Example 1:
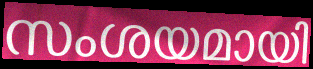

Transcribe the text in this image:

സംശയമായി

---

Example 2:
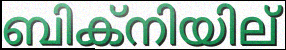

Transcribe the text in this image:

ബിക്നിയില്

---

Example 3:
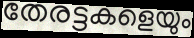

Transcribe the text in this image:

തേരട്ടകളെയും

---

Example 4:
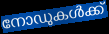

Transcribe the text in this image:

നോഡുകൾക്ക്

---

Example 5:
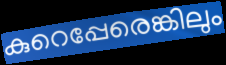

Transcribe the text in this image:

കുറെപ്പേരെങ്കിലും